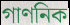
গাণনিক